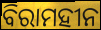
ବିରାମହୀନ